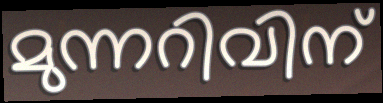
മുന്നറിവിന്